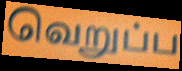
வெறுப்ப